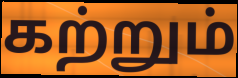
கற்றும்